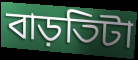
বাড়তিটা